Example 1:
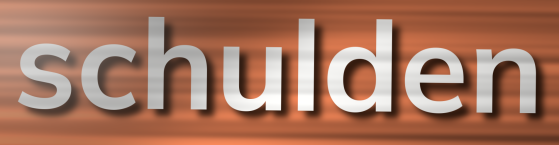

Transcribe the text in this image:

schulden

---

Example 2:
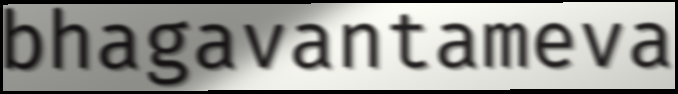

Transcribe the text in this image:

bhagavantameva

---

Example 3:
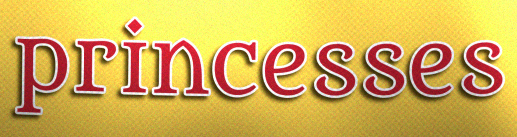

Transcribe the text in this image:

princesses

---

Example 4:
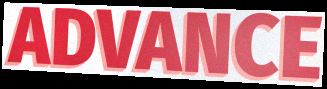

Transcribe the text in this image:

ADVANCE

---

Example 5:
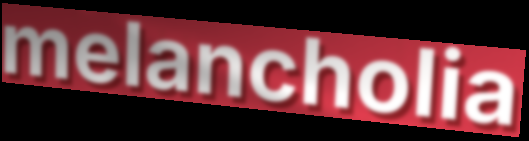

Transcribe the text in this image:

melancholia